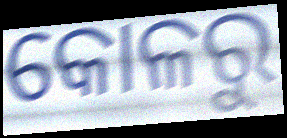
କୋଳରୁ